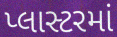
પ્લાસ્ટરમાં